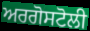
ਅਰਗੋਸਟੋਲੀ